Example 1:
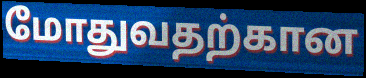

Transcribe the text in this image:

மோதுவதற்கான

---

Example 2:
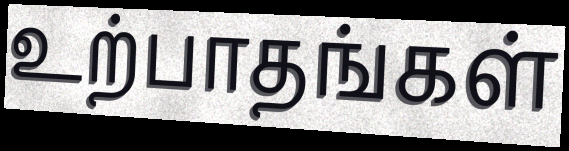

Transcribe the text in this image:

உற்பாதங்கள்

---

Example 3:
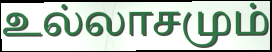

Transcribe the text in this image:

உல்லாசமும்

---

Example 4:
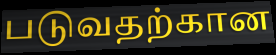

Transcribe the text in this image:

படுவதற்கான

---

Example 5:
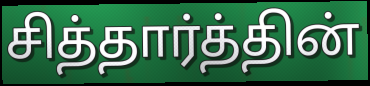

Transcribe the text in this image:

சித்தார்த்தின்